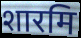
शारमि